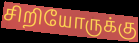
சிறியோருக்கு